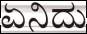
ಏನಿದು